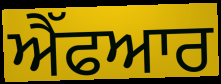
ਐੱਫਆਰ